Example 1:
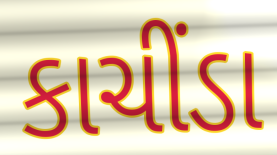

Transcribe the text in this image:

કાચીંડા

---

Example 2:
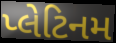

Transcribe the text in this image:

પ્લેટિનમ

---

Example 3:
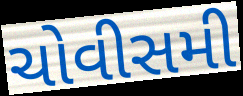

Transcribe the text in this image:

ચોવીસમી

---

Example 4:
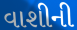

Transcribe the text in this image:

વાશીની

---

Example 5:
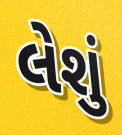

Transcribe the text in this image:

લેશું